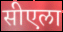
सीएला